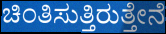
ಚಿಂತಿಸುತ್ತಿರುತ್ತೇನೆ